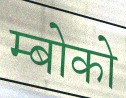
म्बोको